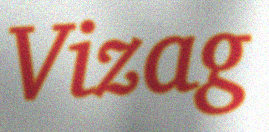
Vizag